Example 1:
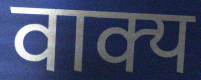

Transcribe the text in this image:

वाक्य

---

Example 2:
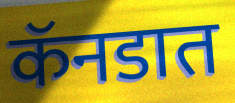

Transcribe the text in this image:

कॅनडात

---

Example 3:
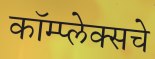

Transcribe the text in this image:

कॉम्प्लेक्सचे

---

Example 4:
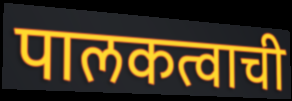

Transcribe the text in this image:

पालकत्वाची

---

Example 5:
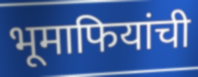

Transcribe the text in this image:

भूमाफियांची